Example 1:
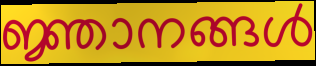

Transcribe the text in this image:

ജ്ഞാനങ്ങൾ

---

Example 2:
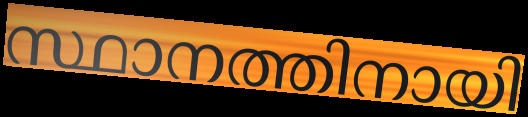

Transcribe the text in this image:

സ്ഥാനത്തിനായി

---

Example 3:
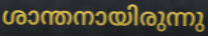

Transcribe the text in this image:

ശാന്തനായിരുന്നു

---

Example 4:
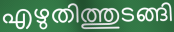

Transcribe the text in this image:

എഴുതിത്തുടങ്ങി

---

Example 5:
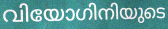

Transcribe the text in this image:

വിയോഗിനിയുടെ